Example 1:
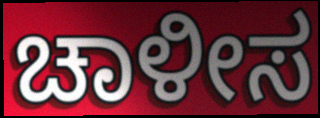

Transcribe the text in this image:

ಚಾಳೀಸ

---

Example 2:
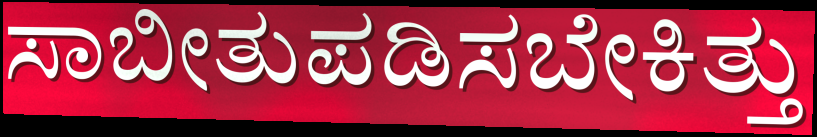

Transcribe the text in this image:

ಸಾಬೀತುಪಡಿಸಬೇಕಿತ್ತು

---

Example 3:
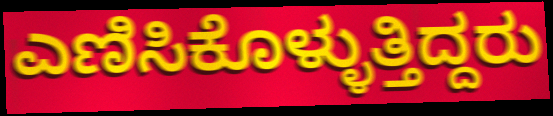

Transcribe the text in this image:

ಎಣಿಸಿಕೊಳ್ಳುತ್ತಿದ್ದರು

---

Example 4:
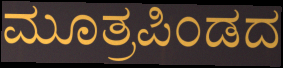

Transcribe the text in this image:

ಮೂತ್ರಪಿಂಡದ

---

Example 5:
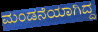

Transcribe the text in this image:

ಮಂಡನೆಯಾಗಿದ್ದ